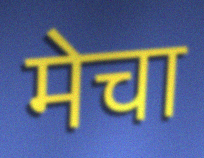
मेचा